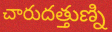
చారుదత్తుణ్ని